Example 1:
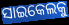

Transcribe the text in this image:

ସାଇକେଲକୁ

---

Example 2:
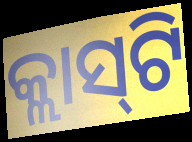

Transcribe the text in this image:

କ୍ଲାସ୍‌ଟି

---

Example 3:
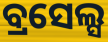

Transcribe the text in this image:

ବ୍ରସେଲ୍ସ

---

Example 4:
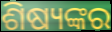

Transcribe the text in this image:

ଶିଷ୍ୟଙ୍କର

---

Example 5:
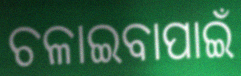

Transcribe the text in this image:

ଚଳାଇବାପାଇଁ